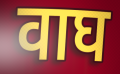
वाघ